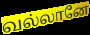
வல்லானே